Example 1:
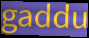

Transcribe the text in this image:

gaddu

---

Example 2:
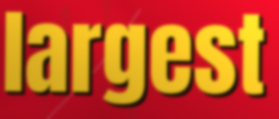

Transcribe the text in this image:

largest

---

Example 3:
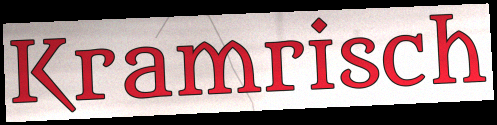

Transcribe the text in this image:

Kramrisch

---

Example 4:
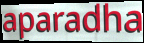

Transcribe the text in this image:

aparadha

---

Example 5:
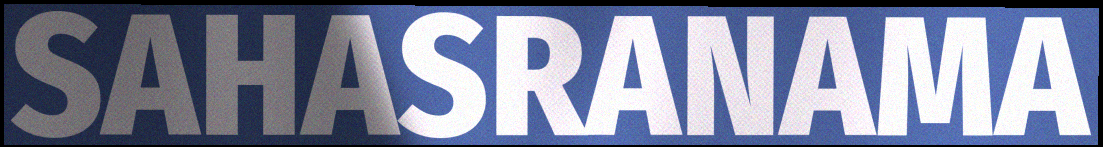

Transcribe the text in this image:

SAHASRANAMA